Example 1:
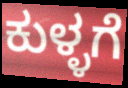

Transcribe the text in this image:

ಕುಳ್ಳಗೆ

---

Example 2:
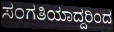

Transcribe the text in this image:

ಸಂಗತಿಯಾದ್ದರಿಂದ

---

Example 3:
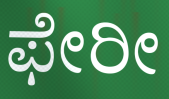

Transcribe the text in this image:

ಫೇರೀ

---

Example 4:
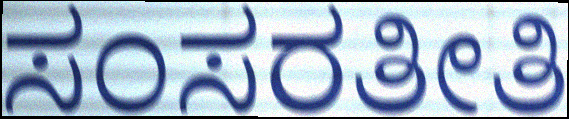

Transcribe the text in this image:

ಸಂಸರತೀತಿ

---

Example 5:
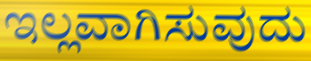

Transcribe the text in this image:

ಇಲ್ಲವಾಗಿಸುವುದು